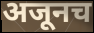
अजूनच